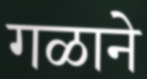
गळाने